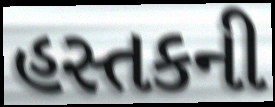
હસ્તકની